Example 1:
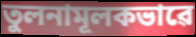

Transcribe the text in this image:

তুলনামূলকভাৱে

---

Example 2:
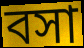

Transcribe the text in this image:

বসা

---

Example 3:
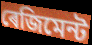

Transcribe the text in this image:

ৰেজিমেন্ট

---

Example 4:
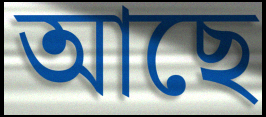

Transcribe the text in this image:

আছে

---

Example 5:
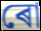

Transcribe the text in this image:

ৰো